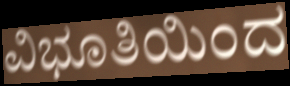
ವಿಭೂತಿಯಿಂದ